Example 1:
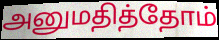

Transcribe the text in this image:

அனுமதித்தோம்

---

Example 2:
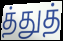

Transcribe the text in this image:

த்துத்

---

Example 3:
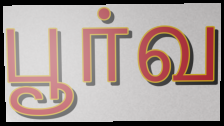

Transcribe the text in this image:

பூர்வ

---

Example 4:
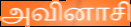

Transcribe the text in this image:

அவினாசி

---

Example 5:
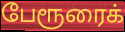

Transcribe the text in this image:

பேரூரைக்